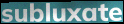
subluxate